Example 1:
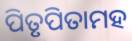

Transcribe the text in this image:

ପିତୃପିତାମହ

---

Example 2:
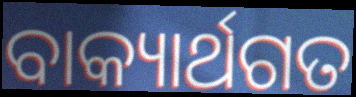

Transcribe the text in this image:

ବାକ୍ୟାର୍ଥଗତ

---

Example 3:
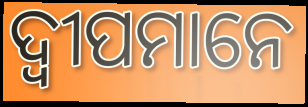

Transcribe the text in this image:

ଦ୍ୱୀପମାନେ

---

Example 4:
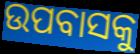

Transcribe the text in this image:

ଉପବାସକୁ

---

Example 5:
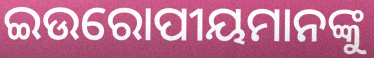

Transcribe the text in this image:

ଇଉରୋପୀୟମାନଙ୍କୁ